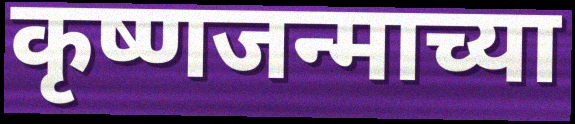
कृष्णजन्माच्या